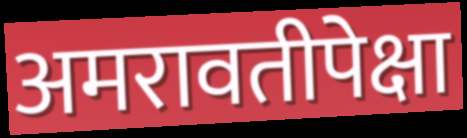
अमरावतीपेक्षा